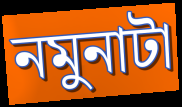
নমুনাটা